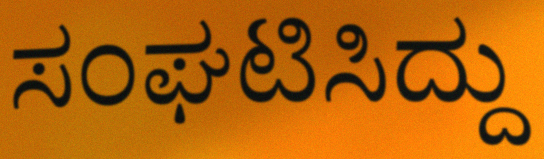
ಸಂಘಟಿಸಿದ್ದು